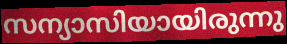
സന്യാസിയായിരുന്നു